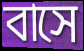
বাসে